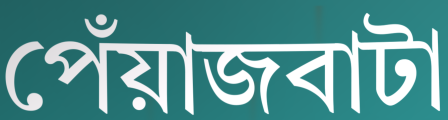
পেঁয়াজবাটা